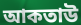
আকতাউ